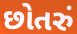
છોતરું